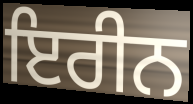
ਇਰੀਨ